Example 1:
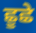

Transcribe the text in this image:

ਛੂਛੇ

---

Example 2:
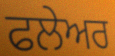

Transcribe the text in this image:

ਫਲੇਅਰ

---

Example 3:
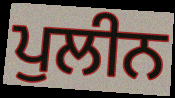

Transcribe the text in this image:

ਪੁਲੀਨ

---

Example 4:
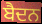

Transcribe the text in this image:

ਬੈਦਨ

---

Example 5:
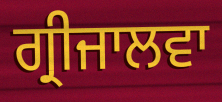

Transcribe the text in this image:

ਗ੍ਰੀਜਾਲਵਾ